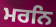
ਮਰਨਿ